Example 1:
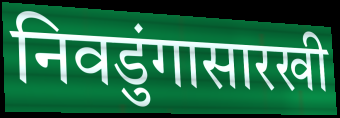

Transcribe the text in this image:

निवडुंगासारखी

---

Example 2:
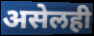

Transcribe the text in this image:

असेलही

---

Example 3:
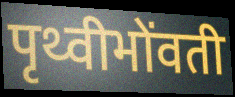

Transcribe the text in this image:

पृथ्वीभोंवती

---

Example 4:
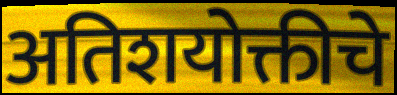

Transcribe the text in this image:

अतिशयोक्तीचे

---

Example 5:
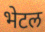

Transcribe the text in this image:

भेटल